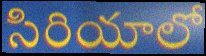
సిరియాలో